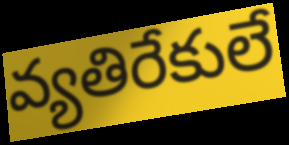
వ్యతిరేకులే